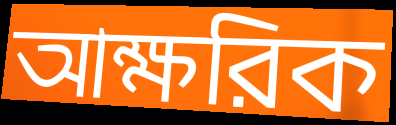
আক্ষরিক